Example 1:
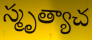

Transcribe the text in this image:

స్మృత్యాచ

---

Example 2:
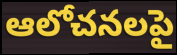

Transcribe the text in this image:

ఆలోచనలపై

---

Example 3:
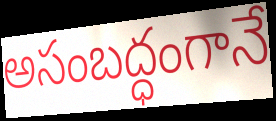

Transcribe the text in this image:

అసంబద్ధంగానే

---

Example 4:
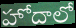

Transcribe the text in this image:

హోదాలో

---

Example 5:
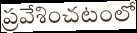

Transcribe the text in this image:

ప్రవేశించటంలో